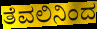
ತೆವಲಿನಿಂದ